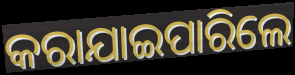
କରାଯାଇପାରିଲେ